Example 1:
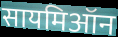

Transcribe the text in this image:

सायमिऑन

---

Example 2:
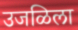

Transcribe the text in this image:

उजळिला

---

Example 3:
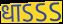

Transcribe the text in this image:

धाऽऽऽ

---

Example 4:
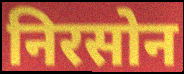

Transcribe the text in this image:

निरसोन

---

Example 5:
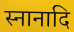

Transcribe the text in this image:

स्नानादि